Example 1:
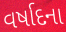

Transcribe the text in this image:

વર્ષાદના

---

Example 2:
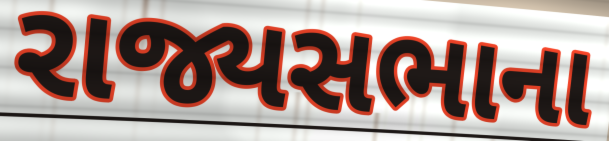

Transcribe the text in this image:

રાજ્યસભાના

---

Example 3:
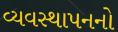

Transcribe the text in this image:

વ્યવસ્થાપનનો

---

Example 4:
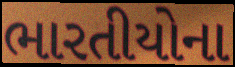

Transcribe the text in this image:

ભારતીયોના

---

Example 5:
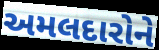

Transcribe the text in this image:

અમલદારોને